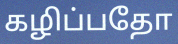
கழிப்பதோ